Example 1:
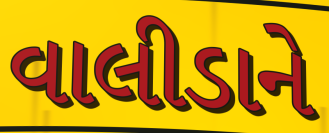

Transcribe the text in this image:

વાલીડાને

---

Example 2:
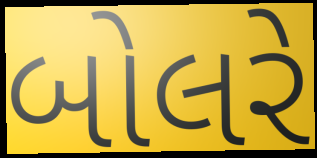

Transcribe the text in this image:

બોલરે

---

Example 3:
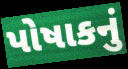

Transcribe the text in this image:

પોષાકનું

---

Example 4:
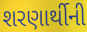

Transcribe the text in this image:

શરણાર્થીની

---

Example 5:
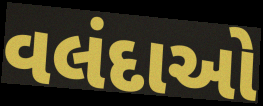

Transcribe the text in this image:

વલંદાઓ